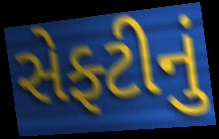
સેફ્ટીનું